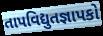
તાપવિદ્યુતજ્ઞાપકો